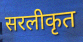
सरलीकृत